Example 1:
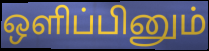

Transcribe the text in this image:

ஒளிப்பினும்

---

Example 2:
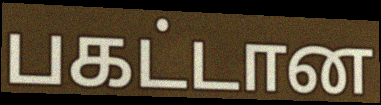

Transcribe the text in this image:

பகட்டான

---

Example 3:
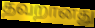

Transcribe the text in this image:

தவறானது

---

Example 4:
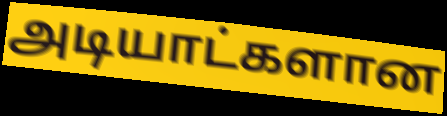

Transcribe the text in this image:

அடியாட்களான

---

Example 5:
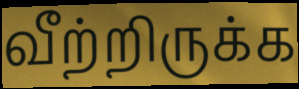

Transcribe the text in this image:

வீற்றிருக்க